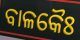
ବାଳକୈଃ